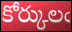
కోర్కులఁ